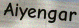
Aiyengar